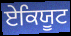
ਏਕਿਯੂਟ